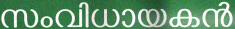
സംവിധായകൻ